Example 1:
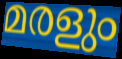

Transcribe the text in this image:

മരളും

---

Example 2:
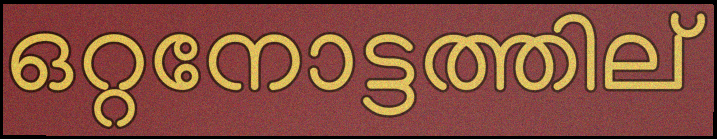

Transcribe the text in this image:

ഒറ്റനോട്ടത്തില്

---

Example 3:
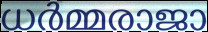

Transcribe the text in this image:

ധർമ്മരാജാ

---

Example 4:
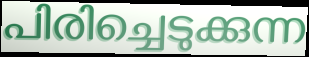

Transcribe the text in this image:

പിരിച്ചെടുക്കുന്ന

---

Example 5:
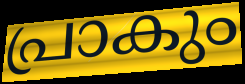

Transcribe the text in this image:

പ്രാകും